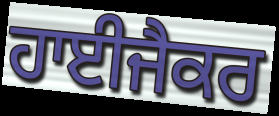
ਹਾਈਜੈਕਰ